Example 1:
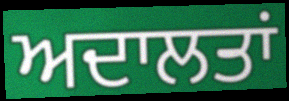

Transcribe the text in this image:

ਅਦਾਲਤਾਂ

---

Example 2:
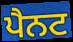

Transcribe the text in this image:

ਪੈਨਟ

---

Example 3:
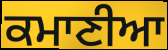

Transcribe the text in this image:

ਕਮਾਣੀਆ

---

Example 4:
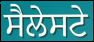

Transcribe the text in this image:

ਸੈਲੇਸਟੇ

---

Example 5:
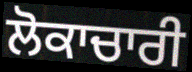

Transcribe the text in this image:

ਲੋਕਾਚਾਰੀ